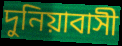
দুনিয়াবাসী